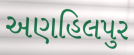
અણહિલપુર